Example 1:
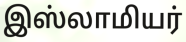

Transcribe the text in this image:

இஸ்லாமியர்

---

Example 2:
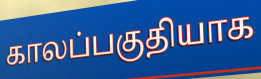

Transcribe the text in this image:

காலப்பகுதியாக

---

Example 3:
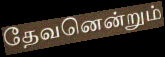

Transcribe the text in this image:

தேவனென்றும்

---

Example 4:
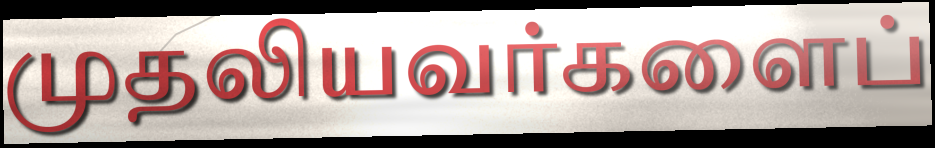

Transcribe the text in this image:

முதலியவர்களைப்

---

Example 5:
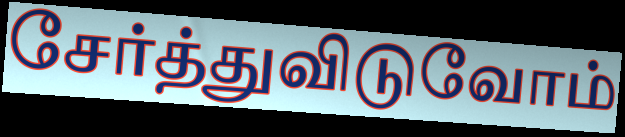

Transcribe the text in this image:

சேர்த்துவிடுவோம்